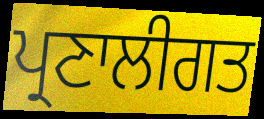
ਪ੍ਰਣਾਲੀਗਤ